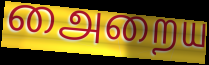
அைறைய